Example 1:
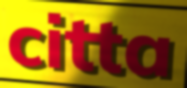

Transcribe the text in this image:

citta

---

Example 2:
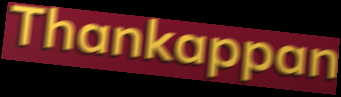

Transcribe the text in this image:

Thankappan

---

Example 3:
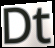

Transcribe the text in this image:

Dt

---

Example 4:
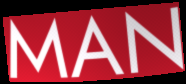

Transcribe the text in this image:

MAN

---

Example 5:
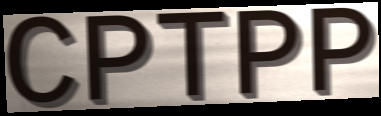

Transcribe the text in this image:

CPTPP